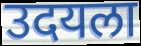
उदयला